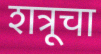
शत्रूचा